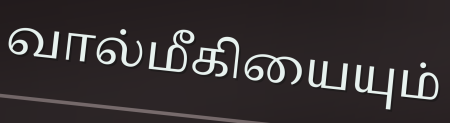
வால்மீகியையும்